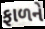
ફાળને